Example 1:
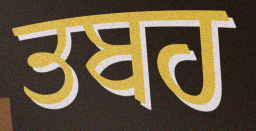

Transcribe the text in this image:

ਤਬਹ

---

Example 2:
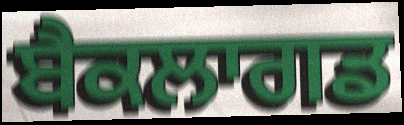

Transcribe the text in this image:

ਬੈਕਲਾਗਡ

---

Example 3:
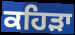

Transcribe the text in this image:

ਕਹਿੜਾ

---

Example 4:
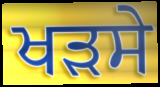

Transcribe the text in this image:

ਖੜਸੇ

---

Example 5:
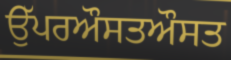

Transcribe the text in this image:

ਉੱਪਰਔਸਤਔਸਤ